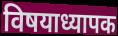
विषयाध्यापक